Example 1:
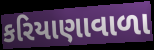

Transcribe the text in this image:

કરિયાણાવાળા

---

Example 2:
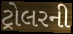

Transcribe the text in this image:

ટ્રોલરની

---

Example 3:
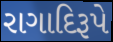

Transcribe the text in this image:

રાગાદિરૂપે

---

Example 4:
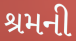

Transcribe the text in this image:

શ્રમની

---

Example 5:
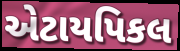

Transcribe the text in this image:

એટાયપિકલ